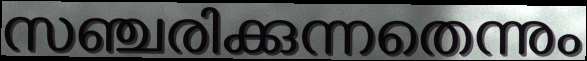
സഞ്ചരിക്കുന്നതെന്നും